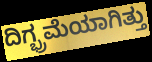
ದಿಗ್ಭ್ರಮೆಯಾಗಿತ್ತು